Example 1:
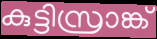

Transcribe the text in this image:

കുട്ടിസ്രാങ്ക്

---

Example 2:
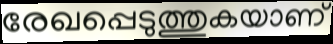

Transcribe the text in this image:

രേഖപ്പെടുത്തുകയാണ്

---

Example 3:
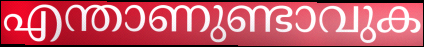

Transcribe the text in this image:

എന്താണുണ്ടാവുക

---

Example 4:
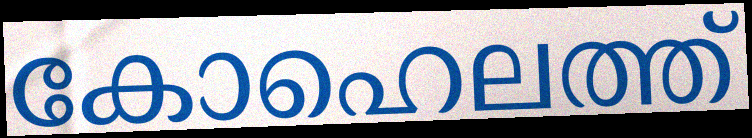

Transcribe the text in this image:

കോഹെലത്ത്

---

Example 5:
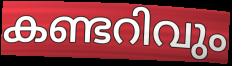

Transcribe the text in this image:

കണ്ടറിവും